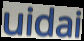
uidai